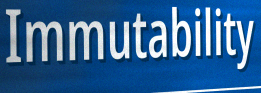
Immutability